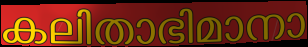
കലിതാഭിമാനാ